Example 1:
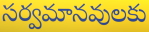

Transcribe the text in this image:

సర్వమానవులకు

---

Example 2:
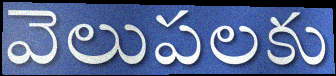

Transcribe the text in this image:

వెలుపలకు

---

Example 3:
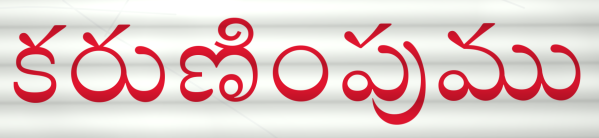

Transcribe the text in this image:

కరుణింపుము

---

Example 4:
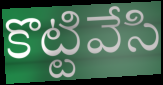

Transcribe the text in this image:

కొట్టివేసి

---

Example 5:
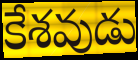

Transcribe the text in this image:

కేశవుడు